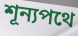
শূন্যপথে